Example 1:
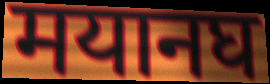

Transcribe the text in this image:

मयानघ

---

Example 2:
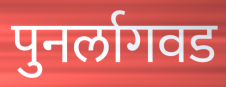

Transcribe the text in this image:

पुनर्लागवड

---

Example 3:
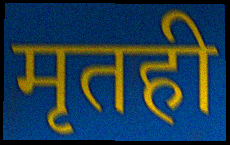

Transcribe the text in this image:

मृतही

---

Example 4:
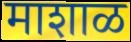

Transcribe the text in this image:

माशाळ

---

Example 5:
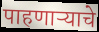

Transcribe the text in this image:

पाहणाऱ्याचे